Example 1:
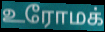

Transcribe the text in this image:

உரோமக்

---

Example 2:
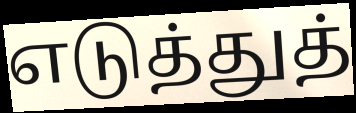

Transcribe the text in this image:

எடுத்துத்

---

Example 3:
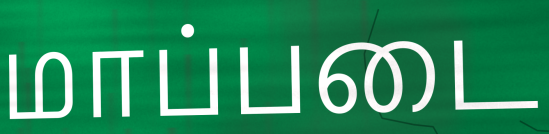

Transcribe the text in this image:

மாப்படை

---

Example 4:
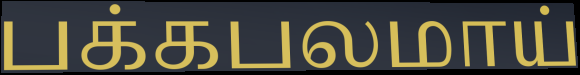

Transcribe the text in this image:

பக்கபலமாய்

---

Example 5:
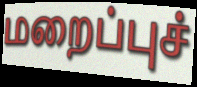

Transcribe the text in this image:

மறைப்புச்